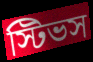
স্টিভস